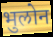
भुलोन